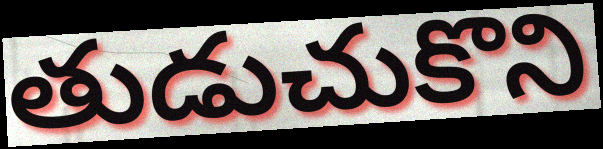
తుడుచుకొని